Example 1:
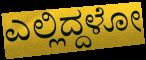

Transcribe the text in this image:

ಎಲ್ಲಿದ್ದಳೋ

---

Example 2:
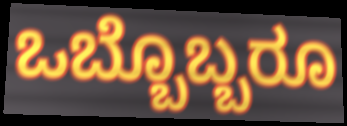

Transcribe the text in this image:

ಒಬ್ಬೊಬ್ಬರೂ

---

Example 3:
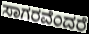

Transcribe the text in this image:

ಸಾಗರವೆಂದರೆ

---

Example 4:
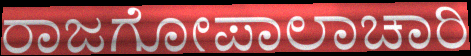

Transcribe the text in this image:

ರಾಜಗೋಪಾಲಾಚಾರಿ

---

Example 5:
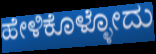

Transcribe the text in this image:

ಹೇಳಿಕೊಳ್ಳೋದು